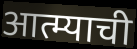
आत्म्याची